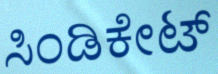
ಸಿಂಡಿಕೇಟ್